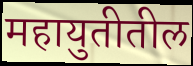
महायुतीतील